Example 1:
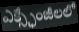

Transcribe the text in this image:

ఎక్స్ఛేంజీలలో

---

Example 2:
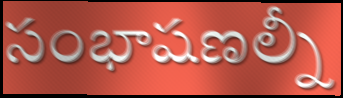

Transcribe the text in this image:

సంభాషణల్నీ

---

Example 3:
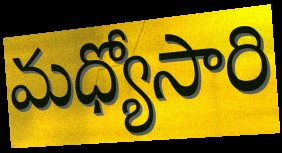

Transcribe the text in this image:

మధ్యోసారి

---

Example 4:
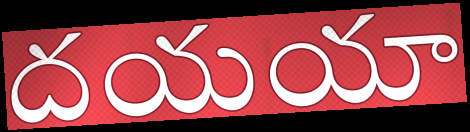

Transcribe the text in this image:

దయయా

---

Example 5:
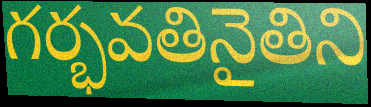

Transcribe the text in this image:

గర్భవతినైతిని